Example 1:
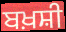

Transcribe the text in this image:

ਬਖ਼ਸ਼ੀ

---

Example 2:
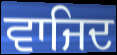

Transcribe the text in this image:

ਵਾਜਿਦ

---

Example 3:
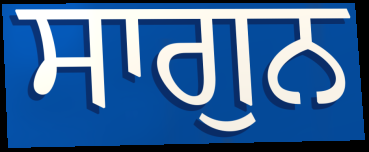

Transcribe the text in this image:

ਸਾਗੁਨ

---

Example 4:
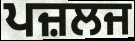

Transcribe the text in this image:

ਪਜ਼ਲਜ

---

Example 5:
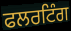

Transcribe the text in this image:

ਫਲਰਟਿੰਗ